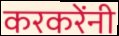
करकरेंनी